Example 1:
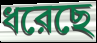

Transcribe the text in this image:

ধরেছে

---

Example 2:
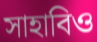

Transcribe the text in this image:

সাহাবিও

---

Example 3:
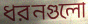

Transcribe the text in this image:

ধরনগুলো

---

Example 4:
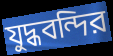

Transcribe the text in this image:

যুদ্ধবন্দির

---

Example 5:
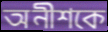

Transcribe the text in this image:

অনীশকে